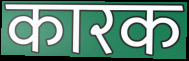
कारक